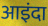
आइंदा